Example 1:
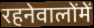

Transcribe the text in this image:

रहनेवालोंमें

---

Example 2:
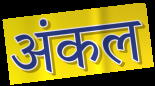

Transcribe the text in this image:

अंकल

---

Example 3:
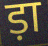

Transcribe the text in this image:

ड़ा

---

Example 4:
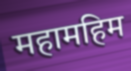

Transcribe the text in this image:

महामहिम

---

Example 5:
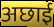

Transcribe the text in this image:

अछाई